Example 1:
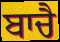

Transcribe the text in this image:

ਬਾਚੈ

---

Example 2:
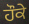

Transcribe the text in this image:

ਹੌਕੇ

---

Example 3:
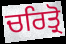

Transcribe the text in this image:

ਚਰਿਤ੍ਰੋ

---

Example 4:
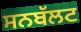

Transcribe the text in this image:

ਸਨਬੱਲਟ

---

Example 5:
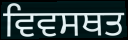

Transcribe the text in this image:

ਵਿਵਸਥਤ